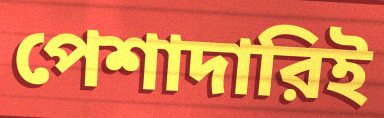
পেশাদারিই